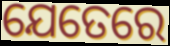
ଯେତେରେ